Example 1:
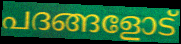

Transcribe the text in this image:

പദങ്ങളോട്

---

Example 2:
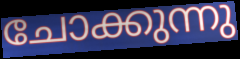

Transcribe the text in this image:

ചോക്കുന്നു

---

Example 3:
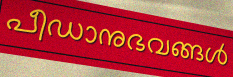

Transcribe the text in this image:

പീഡാനുഭവങ്ങൾ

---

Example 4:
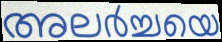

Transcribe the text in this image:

അലർച്ചയെ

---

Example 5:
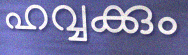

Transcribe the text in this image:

ഹവ്വക്കും